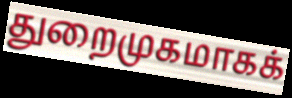
துறைமுகமாகக்